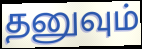
தனுவும்